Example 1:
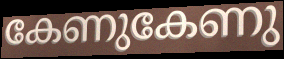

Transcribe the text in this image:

കേണുകേണു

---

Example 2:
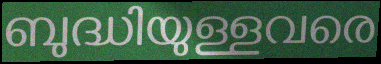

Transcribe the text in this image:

ബുദ്ധിയുള്ളവരെ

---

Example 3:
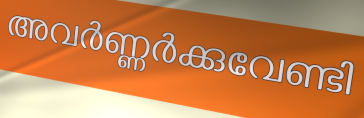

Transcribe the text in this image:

അവർണ്ണർക്കുവേണ്ടി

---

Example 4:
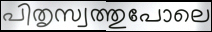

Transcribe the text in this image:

പിതൃസ്വത്തുപോലെ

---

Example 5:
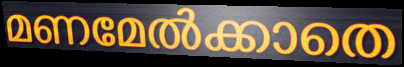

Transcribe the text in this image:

മണമേൽക്കാതെ